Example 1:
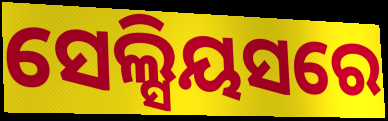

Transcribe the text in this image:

ସେଲ୍ସିୟସରେ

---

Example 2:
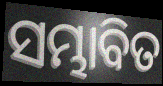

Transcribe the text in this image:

ସମ୍ଭାବିତ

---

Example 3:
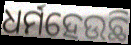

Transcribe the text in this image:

ଧର୍ମହେଉଛି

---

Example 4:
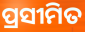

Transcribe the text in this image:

ପ୍ରସୀମିତ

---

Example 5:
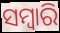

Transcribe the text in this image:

ସମ୍ବାରି